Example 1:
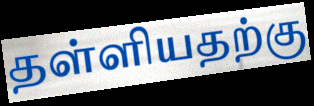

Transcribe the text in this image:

தள்ளியதற்கு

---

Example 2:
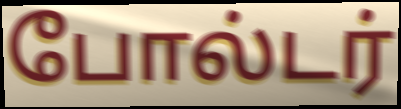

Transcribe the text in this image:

போல்டர்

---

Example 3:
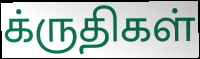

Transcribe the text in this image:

க்ருதிகள்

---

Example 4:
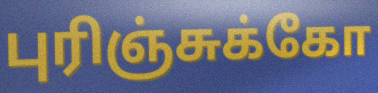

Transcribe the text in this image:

புரிஞ்சுக்கோ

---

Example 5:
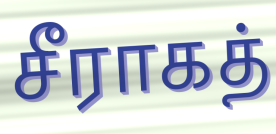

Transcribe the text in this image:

சீராகத்